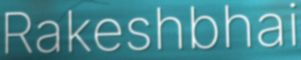
Rakeshbhai